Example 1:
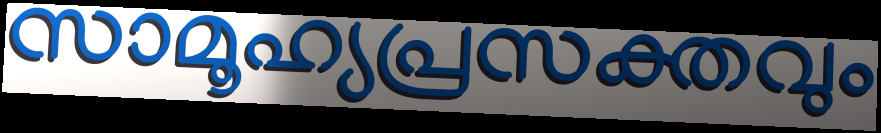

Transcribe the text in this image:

സാമൂഹ്യപ്രസക്തവും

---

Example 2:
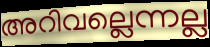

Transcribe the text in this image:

അറിവല്ലെന്നല്ല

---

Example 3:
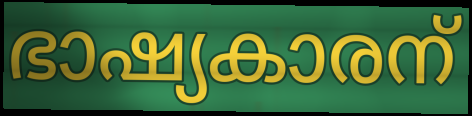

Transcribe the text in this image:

ഭാഷ്യകാരന്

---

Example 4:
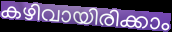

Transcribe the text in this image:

കഴിവായിരിക്കാം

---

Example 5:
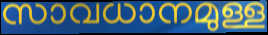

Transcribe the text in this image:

സാവധാനമുള്ള